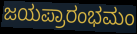
ಜಯಪ್ರಾರಂಭಮಂ